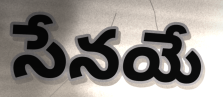
సేనయే